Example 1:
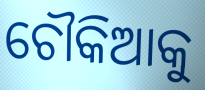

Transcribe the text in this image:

ଚୌକିଆକୁ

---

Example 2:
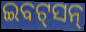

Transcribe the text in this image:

ଇବଟ୍‌ସନ୍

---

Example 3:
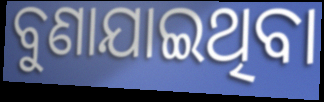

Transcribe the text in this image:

ବୁଣାଯାଇଥିବା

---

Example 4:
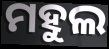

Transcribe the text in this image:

ମହୁଲ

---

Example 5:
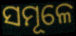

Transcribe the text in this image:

ସମୂଳେ